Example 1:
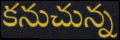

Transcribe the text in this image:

కనుచున్న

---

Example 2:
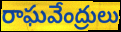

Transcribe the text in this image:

రాఘవేంద్రులు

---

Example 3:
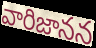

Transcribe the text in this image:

వారిజానన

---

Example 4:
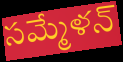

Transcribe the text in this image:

సమ్మేళన్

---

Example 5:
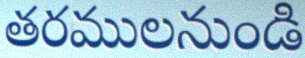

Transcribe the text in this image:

తరములనుండి